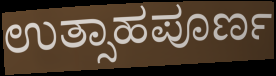
ಉತ್ಸಾಹಪೂರ್ಣ